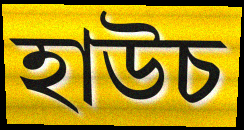
হাউচ